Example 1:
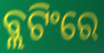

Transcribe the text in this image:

ବ୍ଲଟିଂରେ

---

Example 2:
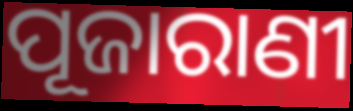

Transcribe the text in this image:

ପୂଜାରାଣୀ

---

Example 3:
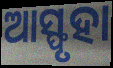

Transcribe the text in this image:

ଆସ୍ଫୃହା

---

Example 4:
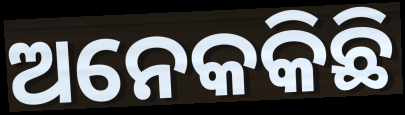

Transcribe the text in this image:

ଅନେକକିଛି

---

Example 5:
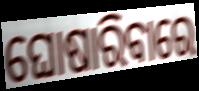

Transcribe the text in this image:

ଘୋଷାରିବାରେ